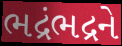
ભદ્રંભદ્રને